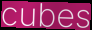
cubes